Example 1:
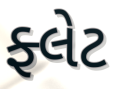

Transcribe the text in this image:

ફ્લેટ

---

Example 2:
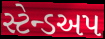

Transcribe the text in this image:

સ્ટેન્ડઅપ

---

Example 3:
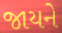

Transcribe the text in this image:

જાયને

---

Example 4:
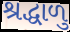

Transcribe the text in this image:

શ્રદ્ધાળુ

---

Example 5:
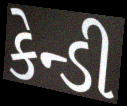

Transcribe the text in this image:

કેન્ડી